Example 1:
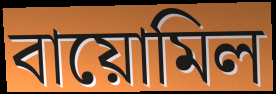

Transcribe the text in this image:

বায়োমিল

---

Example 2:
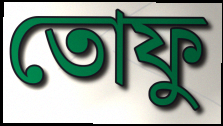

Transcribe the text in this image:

তোফু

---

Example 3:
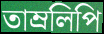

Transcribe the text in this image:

তাম্রলিপি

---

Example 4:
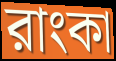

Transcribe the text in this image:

রাংকা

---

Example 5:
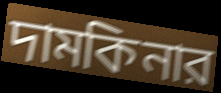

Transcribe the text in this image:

দামকিনার